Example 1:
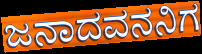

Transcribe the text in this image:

ಜನಾದವನನಿಗ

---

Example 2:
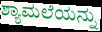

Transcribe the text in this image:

ಶ್ಯಾಮಲೆಯನ್ನು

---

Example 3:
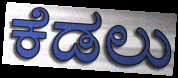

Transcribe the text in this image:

ಕೆಡಲು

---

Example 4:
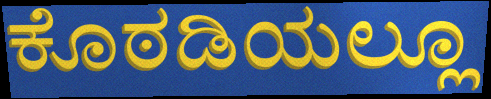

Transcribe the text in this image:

ಕೊಠಡಿಯಲ್ಲೂ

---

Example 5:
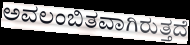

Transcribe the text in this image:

ಅವಲಂಬಿತವಾಗಿರುತ್ತದೆ